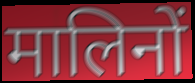
मालिनों